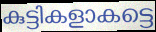
കുട്ടികളാകട്ടെ